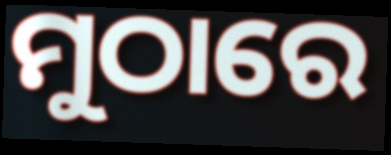
ମୁଠାରେ